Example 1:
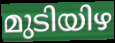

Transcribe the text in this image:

മുടിയിഴ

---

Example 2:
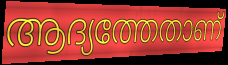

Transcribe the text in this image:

ആദ്യത്തേതാണ്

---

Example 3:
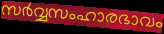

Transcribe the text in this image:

സർവ്വസംഹാരഭാവം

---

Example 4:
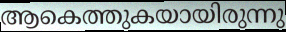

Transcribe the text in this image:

ആകെത്തുകയായിരുന്നു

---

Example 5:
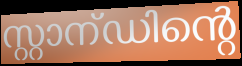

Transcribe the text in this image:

സ്റ്റാന്ഡിന്റെ